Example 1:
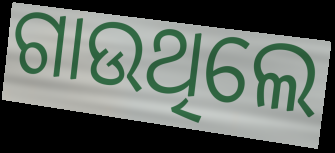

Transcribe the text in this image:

ଗାଉଥିଲେ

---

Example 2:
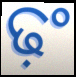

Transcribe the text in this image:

ଢ଼ଂ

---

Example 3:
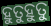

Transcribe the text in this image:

ହୁତୁହୁତୁ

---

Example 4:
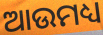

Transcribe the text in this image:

ଆଉମଧ୍ୟ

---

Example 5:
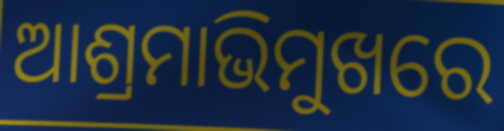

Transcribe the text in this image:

ଆଶ୍ରମାଭିମୁଖରେ